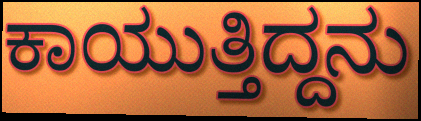
ಕಾಯುತ್ತಿದ್ದನು